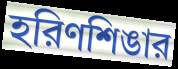
হরিণশিঙার